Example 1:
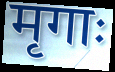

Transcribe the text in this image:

मृगाः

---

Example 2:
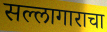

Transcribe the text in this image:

सल्लागाराचा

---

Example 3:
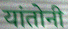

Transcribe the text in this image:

यांतोनी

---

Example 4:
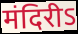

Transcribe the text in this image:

मंदिरीऽ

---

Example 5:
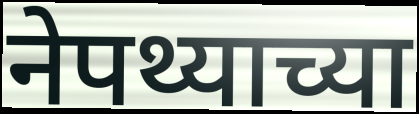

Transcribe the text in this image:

नेपथ्याच्या